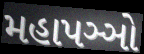
મહાપઞ્ઞો